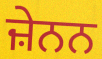
ਜ਼ੇਨਨ